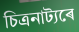
চিত্ৰনাট্যৰে